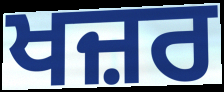
ਖਜ਼ਰ